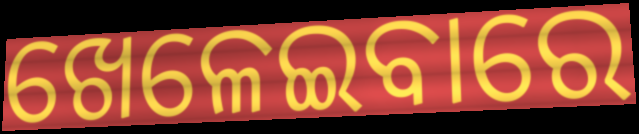
ଖେଳେଇବାରେ